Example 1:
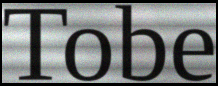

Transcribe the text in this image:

Tobe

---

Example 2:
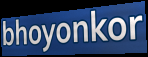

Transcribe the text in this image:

bhoyonkor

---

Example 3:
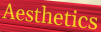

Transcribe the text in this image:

Aesthetics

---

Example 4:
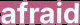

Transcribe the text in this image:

afraid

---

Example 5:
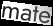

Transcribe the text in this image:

mate